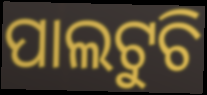
ପାଲଟୁଚି